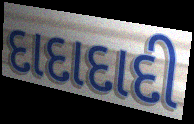
દાદાદાદી